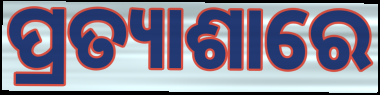
ପ୍ରତ୍ୟାଶାରେ